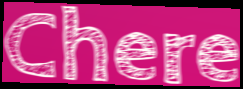
Chere